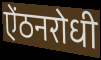
ऐंठनरोधी